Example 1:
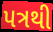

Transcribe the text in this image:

પત્રથી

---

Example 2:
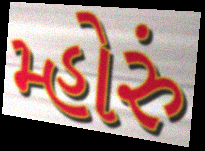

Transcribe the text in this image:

મ્હોરું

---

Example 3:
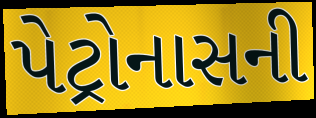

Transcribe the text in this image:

પેટ્રોનાસની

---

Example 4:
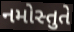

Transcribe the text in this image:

નમોસ્તુતે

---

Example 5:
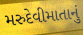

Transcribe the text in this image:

મરુદેવીમાતાનું